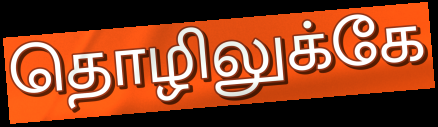
தொழிலுக்கே